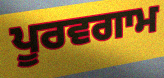
ਪੂਰਵਗਾਮ